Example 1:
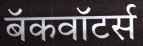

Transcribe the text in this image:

बॅकवॉटर्स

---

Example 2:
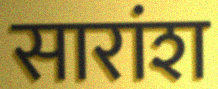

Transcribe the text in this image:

सारांश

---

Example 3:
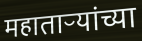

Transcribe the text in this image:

महाताऱ्यांच्या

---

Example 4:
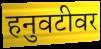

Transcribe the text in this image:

हनुवटीवर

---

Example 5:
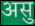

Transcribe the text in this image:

असु